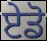
ਏਡੋ